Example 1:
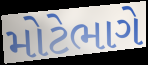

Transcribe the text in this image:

મોટેભાગે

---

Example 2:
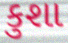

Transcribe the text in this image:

કુશા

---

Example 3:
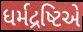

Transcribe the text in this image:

ધર્મદ્રષ્ટિએ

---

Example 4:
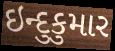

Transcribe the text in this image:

ઇન્દુકુમાર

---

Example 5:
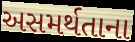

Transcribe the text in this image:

અસમર્થતાના